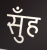
सुँह